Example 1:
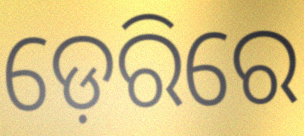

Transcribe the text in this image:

ଡ଼େରିରେ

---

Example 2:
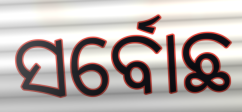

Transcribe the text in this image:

ସର୍ବୋଛ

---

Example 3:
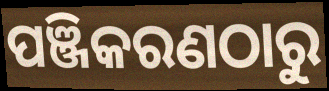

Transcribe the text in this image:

ପଞ୍ଜିକରଣଠାରୁ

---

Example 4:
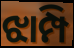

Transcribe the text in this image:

ଝାମ୍ପି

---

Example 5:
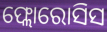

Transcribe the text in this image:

ଫ୍ଲୋରୋସିସ